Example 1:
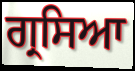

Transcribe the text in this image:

ਗ੍ਰਸਿਆ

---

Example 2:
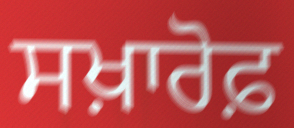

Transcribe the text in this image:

ਸਖ਼ਾਰੋਫ਼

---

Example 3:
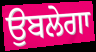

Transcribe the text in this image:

ਉਬਲੇਗਾ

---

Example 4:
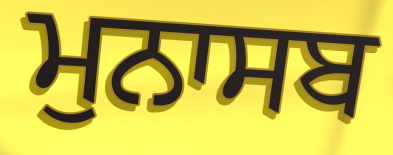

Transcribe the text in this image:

ਮੁਨਾਸਬ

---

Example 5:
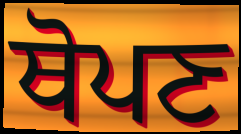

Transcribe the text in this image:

ਥੋਪਣ